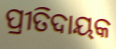
ପ୍ରୀତିଦାୟକ